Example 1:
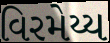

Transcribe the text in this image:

વિરમેય્ય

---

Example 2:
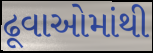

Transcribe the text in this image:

ઢૂવાઓમાંથી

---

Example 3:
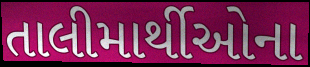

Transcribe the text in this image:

તાલીમાર્થીઓના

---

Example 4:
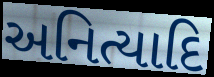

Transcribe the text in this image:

અનિત્યાદિ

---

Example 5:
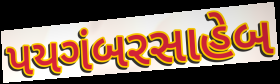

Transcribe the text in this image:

પયગંબરસાહેબ